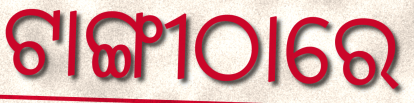
ଟାଙ୍ଗୀଠାରେ